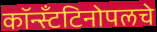
कॉन्स्टँटिनोपलचे